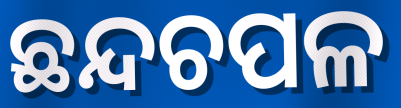
ଛନ୍ଦଚପଳ